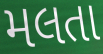
મલતા